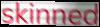
skinned